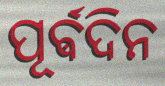
ପୂର୍ଵଦିନ